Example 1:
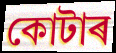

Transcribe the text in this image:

কোটাৰ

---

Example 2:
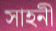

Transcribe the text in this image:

সাহনী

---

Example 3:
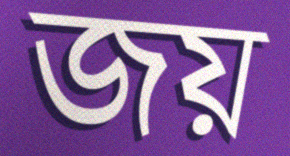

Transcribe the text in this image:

জয়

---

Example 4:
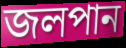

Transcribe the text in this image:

জলপান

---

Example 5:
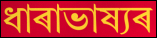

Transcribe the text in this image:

ধাৰাভাষ্যৰ